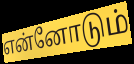
என்னோடும்